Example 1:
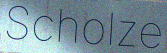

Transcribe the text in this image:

Scholze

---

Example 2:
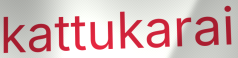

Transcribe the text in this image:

kattukarai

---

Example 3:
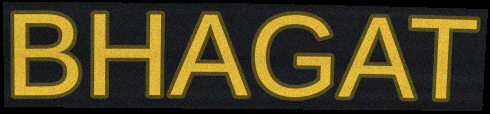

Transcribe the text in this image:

BHAGAT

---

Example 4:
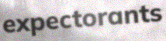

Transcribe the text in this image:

expectorants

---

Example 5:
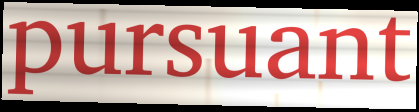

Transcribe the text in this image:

pursuant